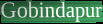
Gobindapur